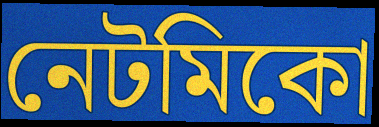
নেটমিকো